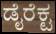
ಡೈರೆಕ್ಟ